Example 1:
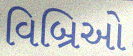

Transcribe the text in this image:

વિબ્રિઓ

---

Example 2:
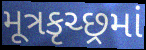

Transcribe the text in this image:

મૂત્રકૃચ્છ્રમાં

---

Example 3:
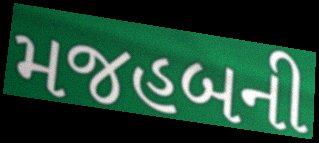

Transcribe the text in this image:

મજહબની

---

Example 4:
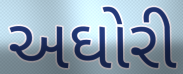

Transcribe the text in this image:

અઘોરી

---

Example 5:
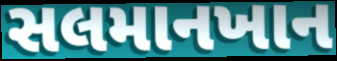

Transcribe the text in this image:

સલમાનખાન